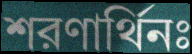
শরণার্থিনঃ